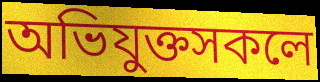
অভিযুক্তসকলে